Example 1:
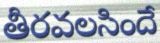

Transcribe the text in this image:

తీరవలసిందే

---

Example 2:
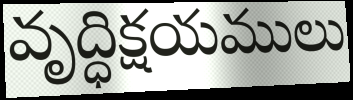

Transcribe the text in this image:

వృద్ధిక్షయములు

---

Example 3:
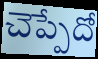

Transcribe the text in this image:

చెప్పేదో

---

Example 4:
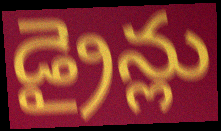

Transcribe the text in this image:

డ్రైన్లు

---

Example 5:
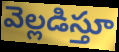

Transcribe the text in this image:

వెల్లడిస్తూ